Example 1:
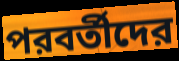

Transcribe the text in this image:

পরবর্তীদের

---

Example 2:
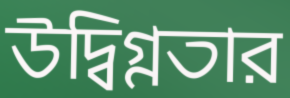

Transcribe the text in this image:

উদ্বিগ্নতার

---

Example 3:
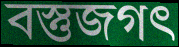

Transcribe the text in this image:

বস্তুজগৎ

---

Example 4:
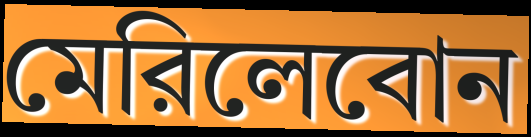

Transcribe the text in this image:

মেরিলেবোন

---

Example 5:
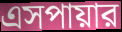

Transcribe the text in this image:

এসপায়ার